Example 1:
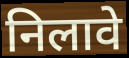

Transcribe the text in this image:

निलावे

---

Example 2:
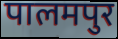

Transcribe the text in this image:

पालमपुर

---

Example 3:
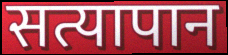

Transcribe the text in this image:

सत्यापान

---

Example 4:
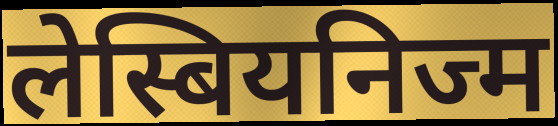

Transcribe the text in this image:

लेस्बियनिज्म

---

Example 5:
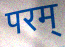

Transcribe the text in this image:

परम्